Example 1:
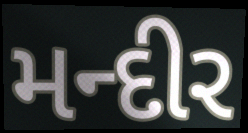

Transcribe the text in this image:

મન્દીર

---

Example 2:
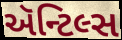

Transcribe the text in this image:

ઍન્ટિલ્સ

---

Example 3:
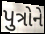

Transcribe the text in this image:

પુત્રોને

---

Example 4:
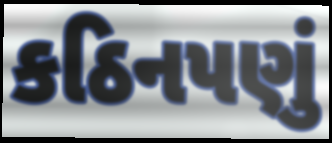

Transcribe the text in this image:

કઠિનપણું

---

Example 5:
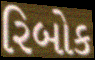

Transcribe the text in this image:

રિબોક